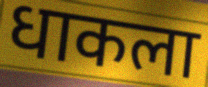
धाकला